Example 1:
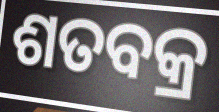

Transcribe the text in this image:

ଶତବକ୍ର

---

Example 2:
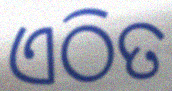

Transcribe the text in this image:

ଏଠିତ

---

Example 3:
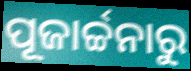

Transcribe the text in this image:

ପୂଜାର୍ଚ୍ଚନାରୁ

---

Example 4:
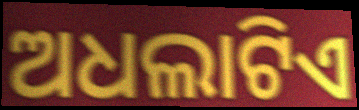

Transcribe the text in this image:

ଅଧଲାଟିଏ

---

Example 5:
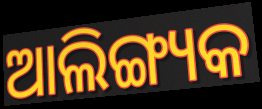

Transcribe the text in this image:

ଆଲିଙ୍ଗ୍ୟକ